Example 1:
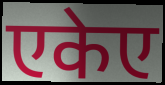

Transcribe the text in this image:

एकेए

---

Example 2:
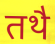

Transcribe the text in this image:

तथै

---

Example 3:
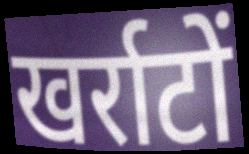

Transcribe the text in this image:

खर्राटों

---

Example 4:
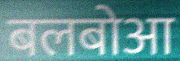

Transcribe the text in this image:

बलबोआ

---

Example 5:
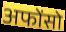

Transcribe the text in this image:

अफोंसो